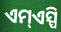
ଏମ୍ଏସ୍ପି